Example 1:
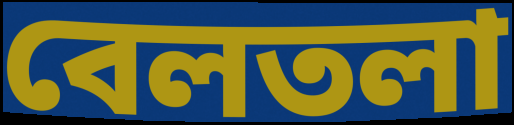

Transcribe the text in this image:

বেলতলা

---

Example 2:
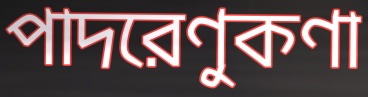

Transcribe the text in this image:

পাদরেণুকণা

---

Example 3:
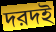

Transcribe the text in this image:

দরদই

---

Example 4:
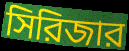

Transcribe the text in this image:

সিরিজার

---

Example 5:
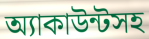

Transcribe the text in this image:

অ্যাকাউন্টসহ